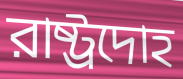
রাষ্ট্রদোহ